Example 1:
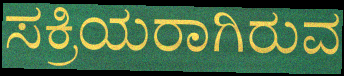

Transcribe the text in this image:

ಸಕ್ರಿಯರಾಗಿರುವ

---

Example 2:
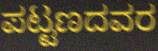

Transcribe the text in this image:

ಪಟ್ಟಣದವರ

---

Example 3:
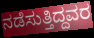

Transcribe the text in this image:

ನಡೆಸುತ್ತಿದ್ದವರ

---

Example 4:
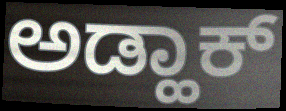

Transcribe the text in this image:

ಅಡ್ಹಾಕ್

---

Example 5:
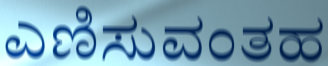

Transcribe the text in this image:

ಎಣಿಸುವಂತಹ